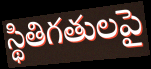
స్థితిగతులపై